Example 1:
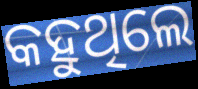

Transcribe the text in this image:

କହୁଥିଲେ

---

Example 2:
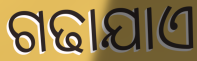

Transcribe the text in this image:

ଗଢାଯାଏ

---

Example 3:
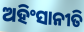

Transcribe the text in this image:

ଅହିଂସାନୀତି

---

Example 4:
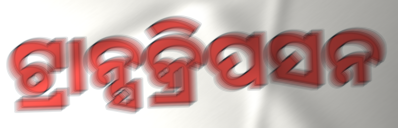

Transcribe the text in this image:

ଟ୍ରାନ୍ସକ୍ରିପସନ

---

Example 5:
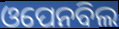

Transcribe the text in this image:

ଓପେନବିଲ